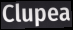
Clupea